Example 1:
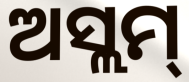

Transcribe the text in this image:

ଅସ୍ଲମ୍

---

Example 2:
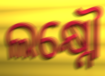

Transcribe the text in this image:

ଲକ୍ଷ୍ନୌ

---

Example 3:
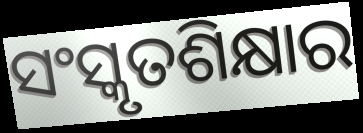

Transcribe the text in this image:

ସଂସ୍କୃତଶିକ୍ଷାର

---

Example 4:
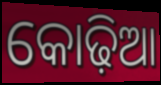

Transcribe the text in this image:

କୋଢ଼ିଆ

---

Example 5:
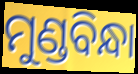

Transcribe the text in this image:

ମୁଣ୍ଡବିନ୍ଧା